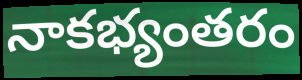
నాకభ్యంతరం